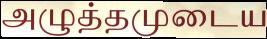
அழுத்தமுடைய